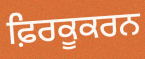
ਫ਼ਿਰਕੂਕਰਨ